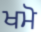
ਖਮੋ